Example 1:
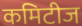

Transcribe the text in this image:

कमिटीज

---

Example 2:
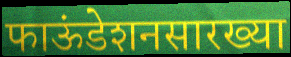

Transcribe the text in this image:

फाऊंडेशनसारख्या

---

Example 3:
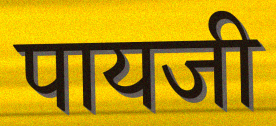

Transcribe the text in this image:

पायजी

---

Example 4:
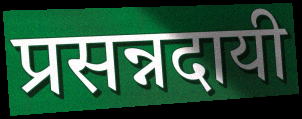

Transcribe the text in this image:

प्रसन्नदायी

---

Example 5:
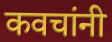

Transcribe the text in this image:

कवचांनी